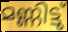
മണ്ണിട്ടു്